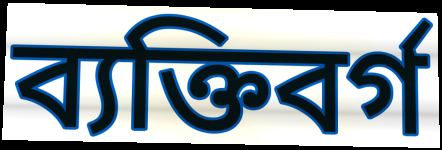
ব্যক্তিবর্গ